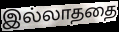
இல்லாததை